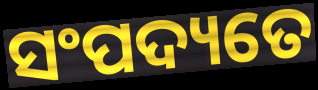
ସଂପଦ୍ୟତେ